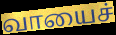
வாயைச்